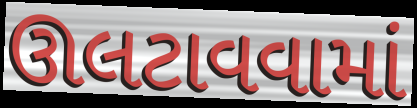
ઊલટાવવામાં